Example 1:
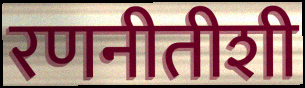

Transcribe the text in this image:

रणनीतीशी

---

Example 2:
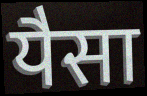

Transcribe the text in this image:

यैसा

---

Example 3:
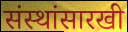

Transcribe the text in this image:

संस्थांसारखी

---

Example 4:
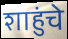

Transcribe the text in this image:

शाहुंचे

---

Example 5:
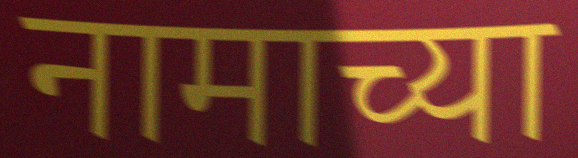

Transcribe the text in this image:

नामाच्या